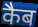
कैब